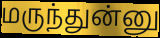
மருந்துன்னு